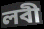
লবী